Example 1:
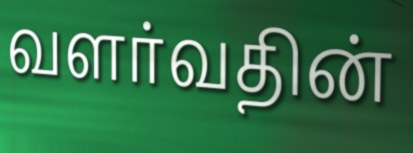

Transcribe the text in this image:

வளர்வதின்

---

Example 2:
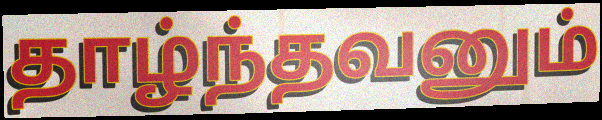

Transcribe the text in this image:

தாழ்ந்தவனும்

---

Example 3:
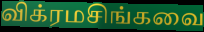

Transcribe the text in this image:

விக்ரமசிங்கவை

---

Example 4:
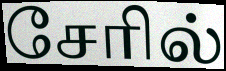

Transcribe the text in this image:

சேரில்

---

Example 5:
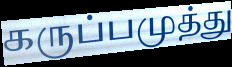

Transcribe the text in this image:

கருப்பமுத்து